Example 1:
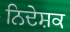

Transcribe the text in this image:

ਨਿਦੇਸ਼ਕ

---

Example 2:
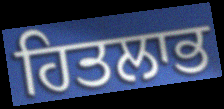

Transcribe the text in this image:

ਹਿਤਲਾਭ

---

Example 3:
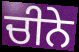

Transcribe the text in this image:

ਚੀਨੇ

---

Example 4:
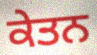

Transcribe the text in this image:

ਕੇਤਨ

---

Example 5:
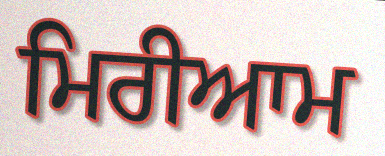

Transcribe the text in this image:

ਮਿਰੀਆਮ